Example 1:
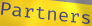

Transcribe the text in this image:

Partners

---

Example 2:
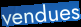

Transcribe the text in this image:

vendues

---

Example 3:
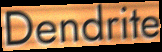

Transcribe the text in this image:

Dendrite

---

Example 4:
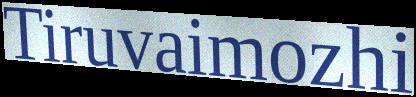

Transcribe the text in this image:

Tiruvaimozhi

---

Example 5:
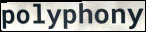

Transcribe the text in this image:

polyphony